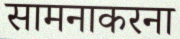
सामनाकरना